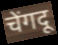
चेंगदू